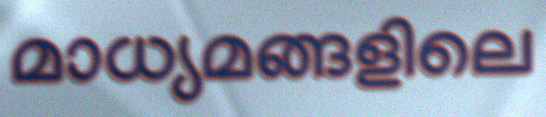
മാധ്യമങ്ങളിലെ